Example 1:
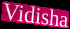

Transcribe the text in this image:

Vidisha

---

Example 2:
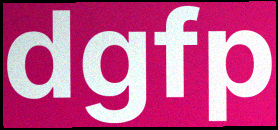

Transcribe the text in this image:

dgfp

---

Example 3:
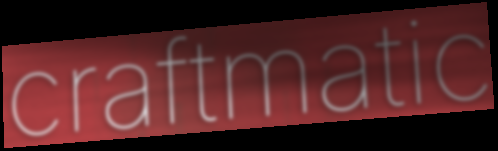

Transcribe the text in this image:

craftmatic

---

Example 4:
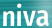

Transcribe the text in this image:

niva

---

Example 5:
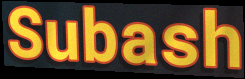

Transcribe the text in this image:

Subash